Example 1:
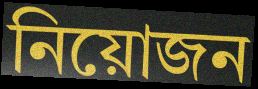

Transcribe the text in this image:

নিয়োজন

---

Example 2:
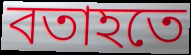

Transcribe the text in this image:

বতাহতে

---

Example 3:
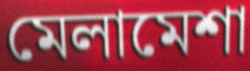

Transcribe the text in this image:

মেলামেশা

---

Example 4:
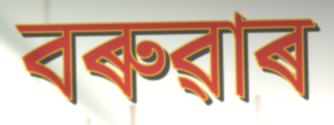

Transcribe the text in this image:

বৰুৱাৰ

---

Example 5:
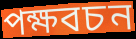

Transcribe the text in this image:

পক্ষবচন